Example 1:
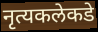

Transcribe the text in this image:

नृत्यकलेकडे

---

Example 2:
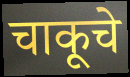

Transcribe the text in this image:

चाकूचे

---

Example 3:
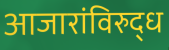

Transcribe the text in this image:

आजारांविरुद्ध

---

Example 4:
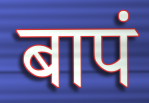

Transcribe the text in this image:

बापं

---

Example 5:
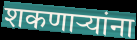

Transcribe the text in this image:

शकणार्‍यांना